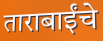
ताराबाईंचे